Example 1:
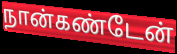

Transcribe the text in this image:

நான்கண்டேன்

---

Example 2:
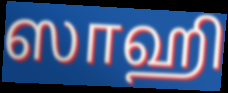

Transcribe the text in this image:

ஸாஹி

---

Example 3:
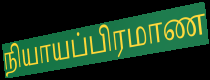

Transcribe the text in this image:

நியாயப்பிரமாண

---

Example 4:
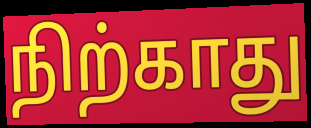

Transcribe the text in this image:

நிற்காது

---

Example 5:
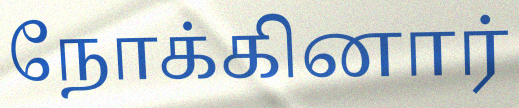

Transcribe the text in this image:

நோக்கினார்